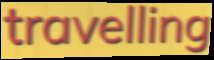
travelling